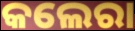
କଲେରା